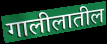
गालीलातील